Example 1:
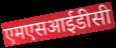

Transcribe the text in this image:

एमएसआईडीसी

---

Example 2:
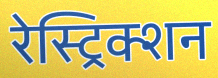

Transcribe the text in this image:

रेस्ट्रिक्शन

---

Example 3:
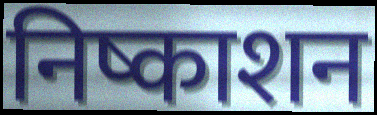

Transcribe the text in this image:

निष्काशन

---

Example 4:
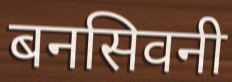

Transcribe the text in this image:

बनसिवनी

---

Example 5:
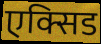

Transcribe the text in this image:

एक्सिड